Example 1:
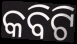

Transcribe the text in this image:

କବିଟି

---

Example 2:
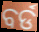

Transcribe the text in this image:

ବର୍ଡ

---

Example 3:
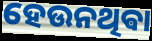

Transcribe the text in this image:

ହେଉନଥିଵା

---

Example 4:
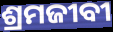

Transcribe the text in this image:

ଶ୍ରମଜୀବୀ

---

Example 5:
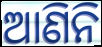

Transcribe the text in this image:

ଆଣିନି